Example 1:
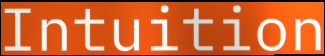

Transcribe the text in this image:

Intuition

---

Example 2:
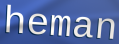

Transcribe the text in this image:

heman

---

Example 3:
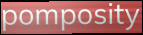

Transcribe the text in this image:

pomposity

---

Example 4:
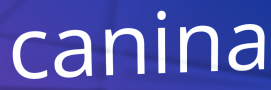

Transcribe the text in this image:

canina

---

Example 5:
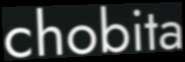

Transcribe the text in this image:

chobita